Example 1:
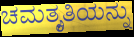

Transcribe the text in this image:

ಚಮತ್ಕೃತಿಯನ್ನು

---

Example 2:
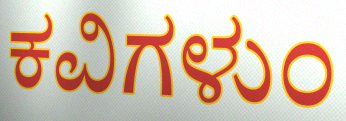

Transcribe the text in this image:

ಕವಿಗಳುಂ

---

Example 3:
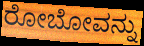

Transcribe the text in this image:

ರೋಬೋವನ್ನು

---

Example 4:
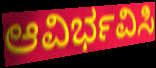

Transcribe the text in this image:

ಆವಿರ್ಭವಿಸಿ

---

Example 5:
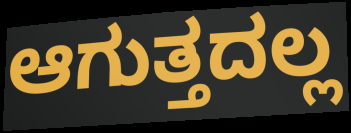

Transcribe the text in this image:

ಆಗುತ್ತದಲ್ಲ